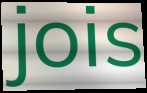
jois